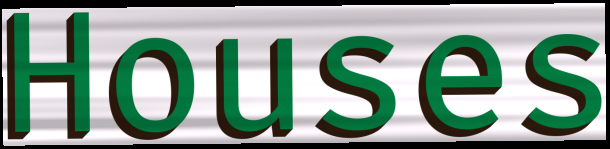
Houses